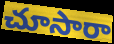
చూసారా